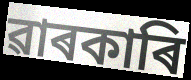
ৱাৰকাৰি